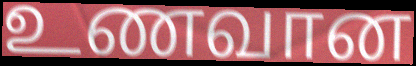
உணவான